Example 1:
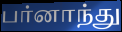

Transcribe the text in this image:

பர்னாந்து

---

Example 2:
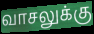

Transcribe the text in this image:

வாசலுக்கு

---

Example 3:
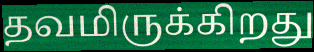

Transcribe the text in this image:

தவமிருக்கிறது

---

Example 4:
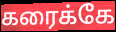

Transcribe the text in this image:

கரைக்கே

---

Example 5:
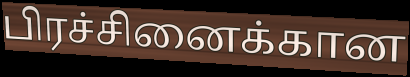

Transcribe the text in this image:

பிரச்சினைக்கான